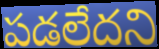
పడలేదని